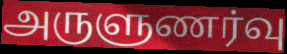
அருளுணர்வு